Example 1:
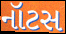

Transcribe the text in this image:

નૉટસ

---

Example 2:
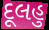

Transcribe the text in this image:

દૂલહુ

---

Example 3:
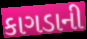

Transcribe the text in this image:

કાગડાની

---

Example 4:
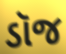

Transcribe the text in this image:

ડૉજ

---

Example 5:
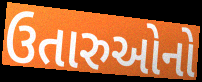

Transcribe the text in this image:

ઉતારુઓનો